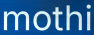
mothi